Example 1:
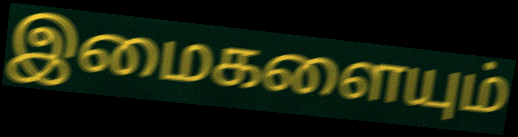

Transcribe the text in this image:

இமைகளையும்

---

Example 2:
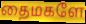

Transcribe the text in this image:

தைமகளே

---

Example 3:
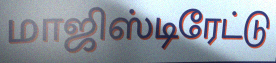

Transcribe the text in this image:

மாஜிஸ்டிரேட்டு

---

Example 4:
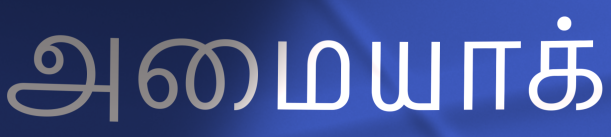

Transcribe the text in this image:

அமையாக்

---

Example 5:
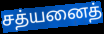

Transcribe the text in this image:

சத்யனைத்